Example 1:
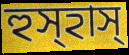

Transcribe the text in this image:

হুস্‌হাস্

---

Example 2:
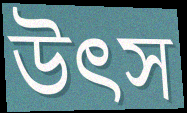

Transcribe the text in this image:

উত্‍স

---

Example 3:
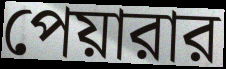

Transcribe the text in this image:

পেয়ারার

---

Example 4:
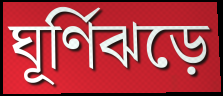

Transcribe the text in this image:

ঘূর্ণিঝড়ে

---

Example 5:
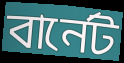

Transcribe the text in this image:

বার্নেট